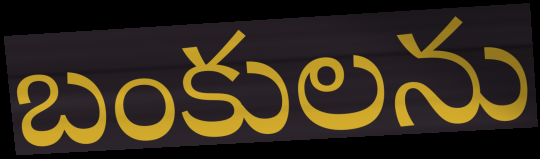
బంకులను